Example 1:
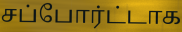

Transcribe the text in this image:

சப்போர்ட்டாக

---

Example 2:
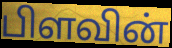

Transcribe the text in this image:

பிளவின்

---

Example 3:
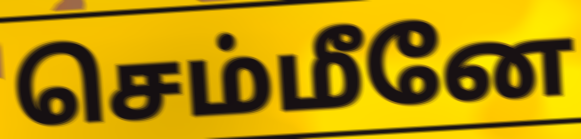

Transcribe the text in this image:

செம்மீனே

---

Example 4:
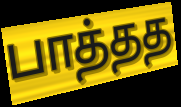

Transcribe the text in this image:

பாத்தத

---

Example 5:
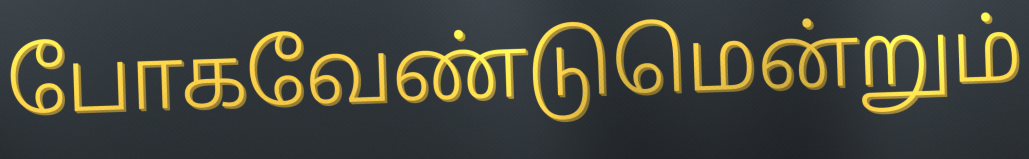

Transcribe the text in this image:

போகவேண்டுமென்றும்